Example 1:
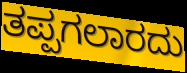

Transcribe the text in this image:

ತಪ್ಪಗಲಾರದು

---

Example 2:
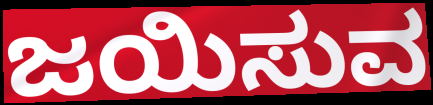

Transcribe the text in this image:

ಜಯಿಸುವ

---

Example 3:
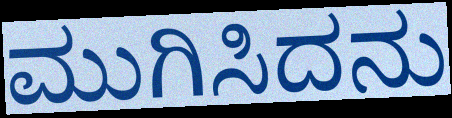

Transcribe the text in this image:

ಮುಗಿಸಿದನು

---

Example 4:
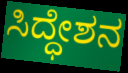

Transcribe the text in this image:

ಸಿದ್ಧೇಶನ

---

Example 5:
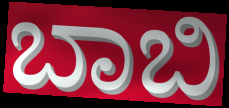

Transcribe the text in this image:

ಬಾಬಿ